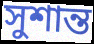
সুশান্ত